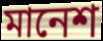
মানেশ